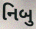
નિબુ